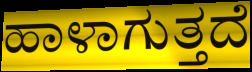
ಹಾಳಾಗುತ್ತದೆ